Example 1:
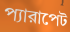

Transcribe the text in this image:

প্যারাপেট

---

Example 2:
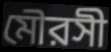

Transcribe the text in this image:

মৌরসী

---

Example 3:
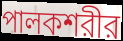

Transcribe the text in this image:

পালকশরীর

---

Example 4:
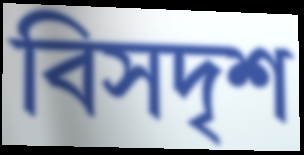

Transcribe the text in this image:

বিসদৃশ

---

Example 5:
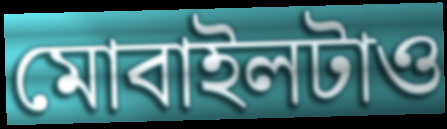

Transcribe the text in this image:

মোবাইলটাও